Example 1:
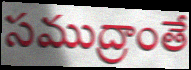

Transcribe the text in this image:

సముద్రాంతే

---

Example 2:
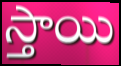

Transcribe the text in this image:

స్తాయి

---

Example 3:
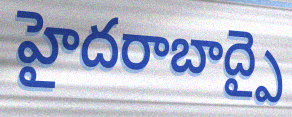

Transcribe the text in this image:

హైదరాబాద్పై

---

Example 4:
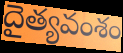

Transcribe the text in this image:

దైత్యవంశం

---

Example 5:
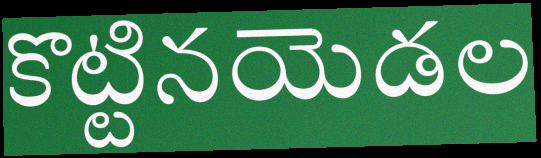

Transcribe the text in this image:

కొట్టినయెడల